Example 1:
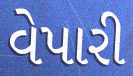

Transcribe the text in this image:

વેપારી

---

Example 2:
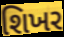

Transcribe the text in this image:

શિખર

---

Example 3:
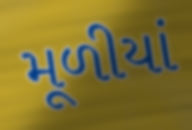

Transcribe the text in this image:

મૂળીયાં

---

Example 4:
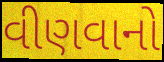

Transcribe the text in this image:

વીણવાનો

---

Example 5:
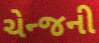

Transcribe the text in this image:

ચેન્જની